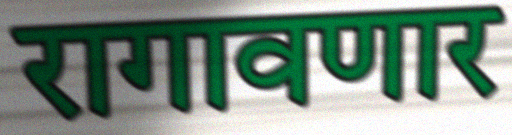
रागावणार